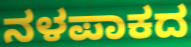
ನಳಪಾಕದ